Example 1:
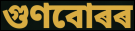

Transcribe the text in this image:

গুণবোৰৰ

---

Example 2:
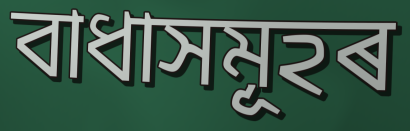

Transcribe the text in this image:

বাধাসমূহৰ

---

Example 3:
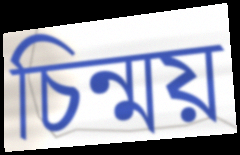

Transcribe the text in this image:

চিন্ময়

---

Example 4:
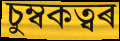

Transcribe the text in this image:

চুম্বকত্বৰ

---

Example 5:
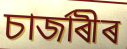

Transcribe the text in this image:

চাৰ্জাৰীৰ